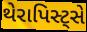
થેરાપિસ્ટ્સે